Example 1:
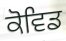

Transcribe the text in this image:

ਕੋਵਿਡ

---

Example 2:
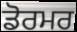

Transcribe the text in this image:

ਡੋਰਮਰ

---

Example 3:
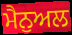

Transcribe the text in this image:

ਮੈਨੁਅਲ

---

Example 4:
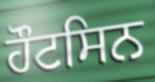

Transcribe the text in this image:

ਹੌਟਸਿਨ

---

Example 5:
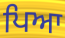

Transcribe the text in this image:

ਪਿਆ